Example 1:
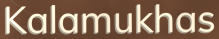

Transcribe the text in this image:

Kalamukhas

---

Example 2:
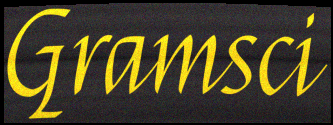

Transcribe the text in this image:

Gramsci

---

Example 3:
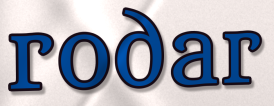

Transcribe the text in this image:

rodar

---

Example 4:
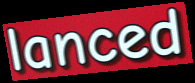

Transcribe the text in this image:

lanced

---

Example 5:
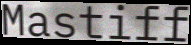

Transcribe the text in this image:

Mastiff